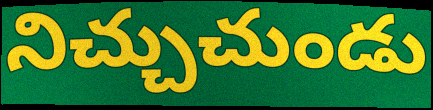
నిచ్చుచుండు